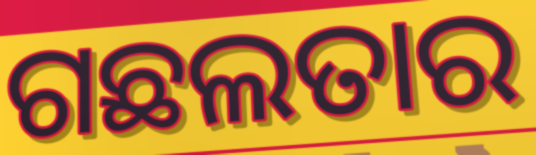
ଗଛଲତାର